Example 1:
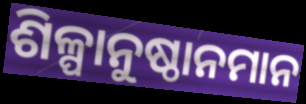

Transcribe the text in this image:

ଶିଳ୍ପାନୁଷ୍ଠାନମାନ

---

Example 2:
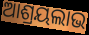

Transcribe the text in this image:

ଆଶ୍ରୟଲାଭ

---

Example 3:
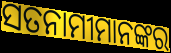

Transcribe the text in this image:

ସତନାମୀମାନଙ୍କର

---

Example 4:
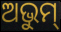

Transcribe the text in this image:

ଅଭୁମ୍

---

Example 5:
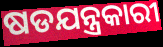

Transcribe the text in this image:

ଷଡଯନ୍ତ୍ରକାରୀ